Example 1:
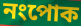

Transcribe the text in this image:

নংপোক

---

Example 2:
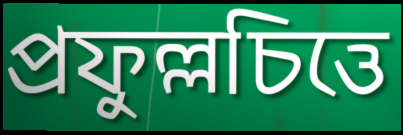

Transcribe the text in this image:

প্রফুল্লচিত্তে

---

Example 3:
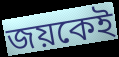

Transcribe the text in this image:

জয়কেই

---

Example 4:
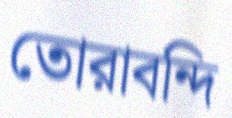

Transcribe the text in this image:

তোরাবন্দি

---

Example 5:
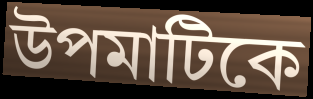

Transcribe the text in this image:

উপমাটিকে